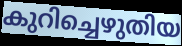
കുറിച്ചെഴുതിയ